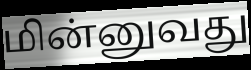
மின்னுவது